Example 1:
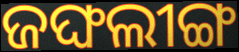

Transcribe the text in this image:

ଜଙ୍ଘଲୀଙ୍ଗ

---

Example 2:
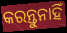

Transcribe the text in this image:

କରନ୍ତୁନାହିଁ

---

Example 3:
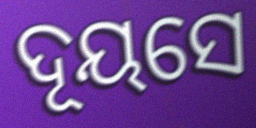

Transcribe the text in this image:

ଦୂୟସେ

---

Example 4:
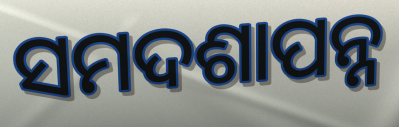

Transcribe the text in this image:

ସମଦଶାପନ୍ନ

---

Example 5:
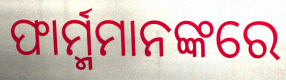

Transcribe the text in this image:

ଫାର୍ମ୍ମମାନଙ୍କରେ